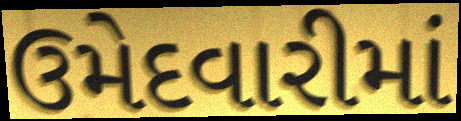
ઉમેદવારીમાં